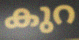
കുറ